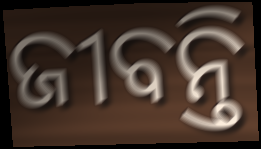
ଜୀବନ୍ତି